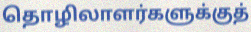
தொழிலாளர்களுக்குத்